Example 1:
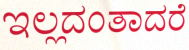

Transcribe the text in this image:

ಇಲ್ಲದಂತಾದರೆ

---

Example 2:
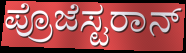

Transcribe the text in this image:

ಪ್ರೊಜೆಸ್ಟರಾನ್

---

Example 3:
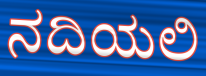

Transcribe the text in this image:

ನದಿಯಲಿ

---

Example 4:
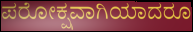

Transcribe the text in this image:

ಪರೋಕ್ಷವಾಗಿಯಾದರೂ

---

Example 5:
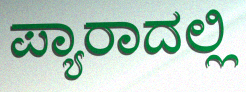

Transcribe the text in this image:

ಪ್ಯಾರಾದಲ್ಲಿ